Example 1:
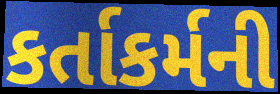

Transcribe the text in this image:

કર્તાકર્મની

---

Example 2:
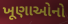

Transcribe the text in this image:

ખૂણાઓનો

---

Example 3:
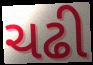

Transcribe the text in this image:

ચઢી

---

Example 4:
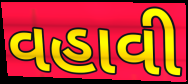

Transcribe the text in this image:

વહાવી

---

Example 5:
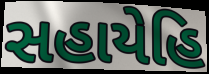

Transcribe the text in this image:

સહાયેહિ